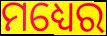
ମଧ୍ୟେର